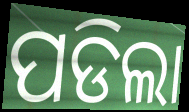
ପଡିଲା